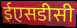
ईएसडीसी